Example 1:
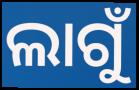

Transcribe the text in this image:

ଲାଗୁଁ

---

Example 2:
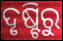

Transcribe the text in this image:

ଦୃଷ୍ଚିରୁ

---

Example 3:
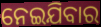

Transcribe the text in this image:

ନେଇଯିବାର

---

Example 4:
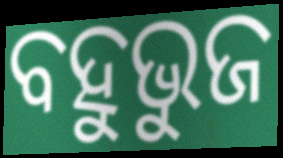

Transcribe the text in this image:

ବହୁଭୁଜ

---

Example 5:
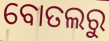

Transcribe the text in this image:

ବୋତଲରୁ